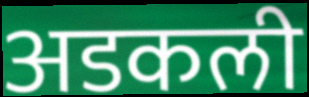
अडकली